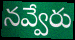
నవ్వేరు